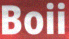
Boii